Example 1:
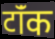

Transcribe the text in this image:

टॉंक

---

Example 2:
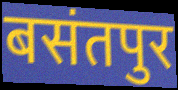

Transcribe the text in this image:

बसंतपुर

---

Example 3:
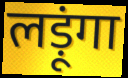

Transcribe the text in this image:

लड़ूंगा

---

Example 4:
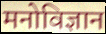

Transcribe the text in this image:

मनोविज्ञान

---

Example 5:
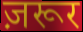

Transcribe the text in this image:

ज़रूर